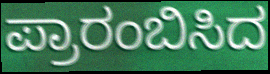
ಪ್ರಾರಂಬಿಸಿದ